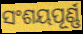
ସଂଶୟପୂର୍ଣ୍ଣ